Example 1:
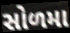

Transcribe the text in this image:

સોળમા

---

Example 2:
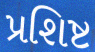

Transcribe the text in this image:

પ્રશિષ્ટ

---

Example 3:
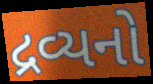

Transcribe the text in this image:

દ્રવ્યનો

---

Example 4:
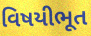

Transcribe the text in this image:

વિષયીભૂત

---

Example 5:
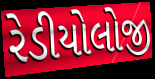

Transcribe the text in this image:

રેડીયોલોજી